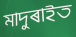
মাদুৰাইত